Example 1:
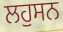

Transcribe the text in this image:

ਲਹੁਸਨ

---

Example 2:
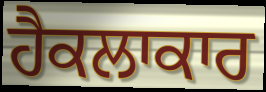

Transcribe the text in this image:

ਹੈਕਲਾਕਾਰ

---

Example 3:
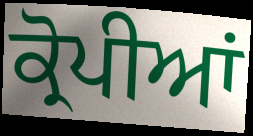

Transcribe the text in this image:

ਕ੍ਰੋਪੀਆਂ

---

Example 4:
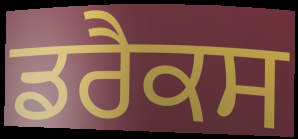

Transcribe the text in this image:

ਡਰੈਕਸ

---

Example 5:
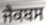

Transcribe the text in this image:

ਜੈਕਬਸ